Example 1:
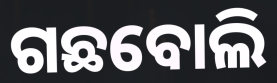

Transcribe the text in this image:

ଗଛବୋଲି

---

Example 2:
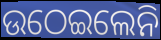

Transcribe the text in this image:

ଉଠେଇଲେନି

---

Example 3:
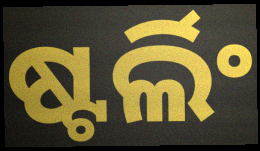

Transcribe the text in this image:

ଷ୍ଟର୍ଲିଂ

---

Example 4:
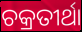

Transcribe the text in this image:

ଚକ୍ରତୀର୍ଥା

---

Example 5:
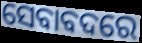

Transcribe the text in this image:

ସେବାବଦରେ